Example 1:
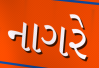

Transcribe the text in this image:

નાગરે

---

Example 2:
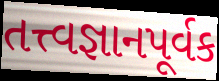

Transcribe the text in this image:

તત્ત્વજ્ઞાનપૂર્વક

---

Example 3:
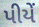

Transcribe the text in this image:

પીયેં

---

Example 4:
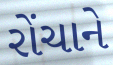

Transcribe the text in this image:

રોંચાને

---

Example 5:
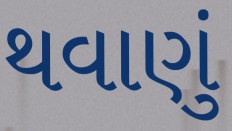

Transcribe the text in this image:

થવાણું